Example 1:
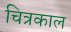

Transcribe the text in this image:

चित्रकाल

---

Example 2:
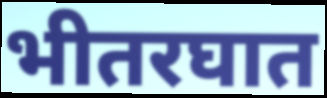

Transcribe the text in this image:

भीतरघात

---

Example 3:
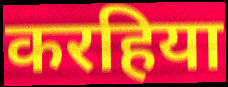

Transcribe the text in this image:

करहिया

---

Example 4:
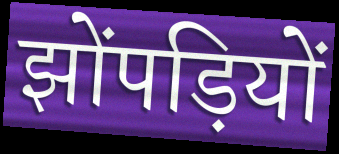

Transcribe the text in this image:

झोंपड़ियों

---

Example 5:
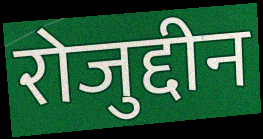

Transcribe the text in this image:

रोजुद्दीन